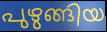
പുഴുങ്ങിയ